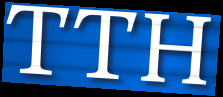
TTH